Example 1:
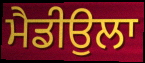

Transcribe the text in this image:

ਮੈਡੀਉਲਾ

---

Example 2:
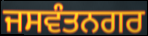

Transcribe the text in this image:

ਜਸਵੰਤਨਗਰ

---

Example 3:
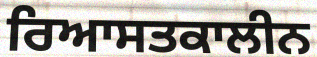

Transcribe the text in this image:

ਰਿਆਸਤਕਾਲੀਨ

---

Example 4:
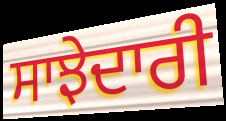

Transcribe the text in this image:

ਸਾਝੇਦਾਰੀ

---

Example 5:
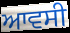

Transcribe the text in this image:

ਆਵਸੀ